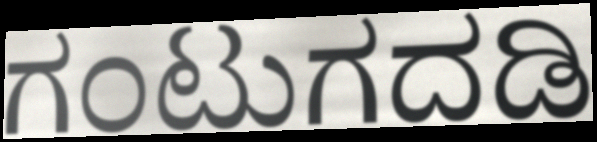
ಗಂಟುಗದಡಿ